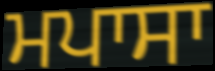
ਮਪਾਸਾ